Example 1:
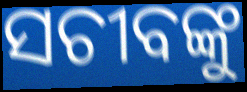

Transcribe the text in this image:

ସଚୀବଙ୍କୁ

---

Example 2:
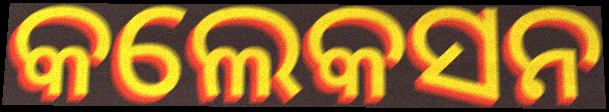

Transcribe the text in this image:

କଲେକସନ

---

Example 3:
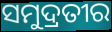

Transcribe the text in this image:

ସମୁଦ୍ରତୀର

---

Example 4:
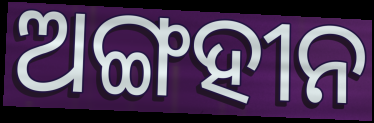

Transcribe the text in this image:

ଅଙ୍ଗହୀନ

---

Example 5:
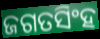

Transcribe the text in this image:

ଜଗତସିଂହ